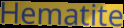
Hematite